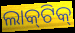
ଲାକ୍‌ଟିକ୍